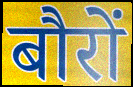
बौरों